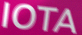
IOTA